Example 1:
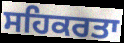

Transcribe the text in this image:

ਸਹਿਕਰਤਾ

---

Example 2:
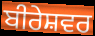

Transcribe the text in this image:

ਬੀਰੇਸ਼ਵਰ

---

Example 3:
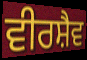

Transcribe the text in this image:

ਵੀਰਸ਼ੈਵ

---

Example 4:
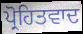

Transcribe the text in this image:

ਪ੍ਰੋਹਿਤਵਾਦ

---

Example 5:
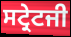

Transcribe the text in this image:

ਸਟ੍ਰੇਟਜੀ